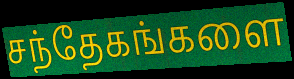
சந்தேகங்களை